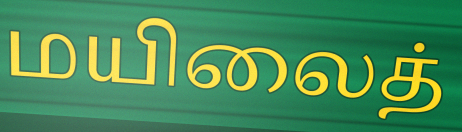
மயிலைத்